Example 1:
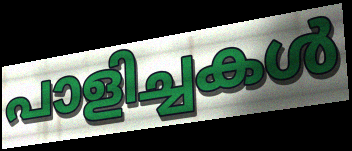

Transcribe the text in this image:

പാളിച്ചകൾ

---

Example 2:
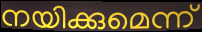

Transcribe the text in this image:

നയിക്കുമെന്ന്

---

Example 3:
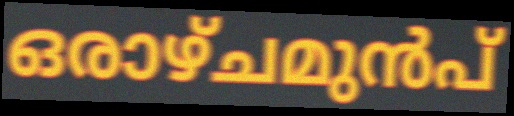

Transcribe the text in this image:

ഒരാഴ്ചമുൻപ്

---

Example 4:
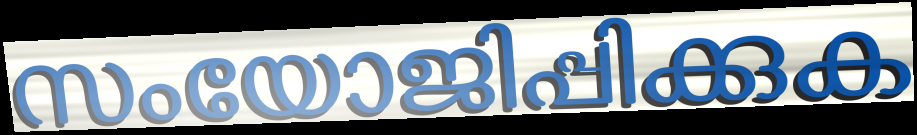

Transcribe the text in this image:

സംയോജിപ്പിക്കുക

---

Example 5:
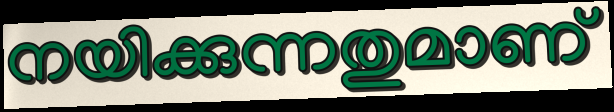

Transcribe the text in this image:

നയിക്കുന്നതുമാണ്